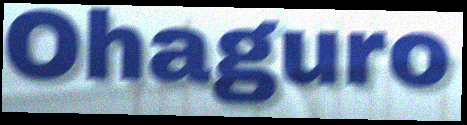
Ohaguro